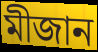
মীজান